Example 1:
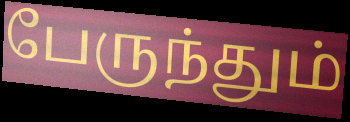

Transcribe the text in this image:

பேருந்தும்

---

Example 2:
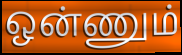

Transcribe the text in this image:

ஒன்ணும்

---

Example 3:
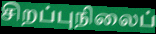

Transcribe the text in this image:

சிறப்புநிலைப்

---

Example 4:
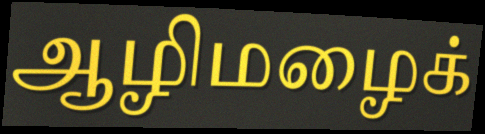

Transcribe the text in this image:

ஆழிமழைக்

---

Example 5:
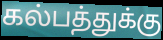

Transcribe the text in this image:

கல்பத்துக்கு